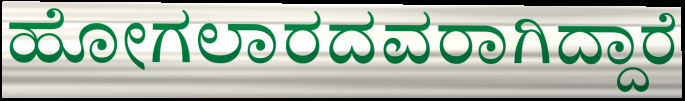
ಹೋಗಲಾರದವರಾಗಿದ್ದಾರೆ